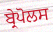
ਬ੍ਰੇਪੋਲਸ